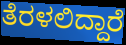
ತೆರಳಲಿದ್ದಾರೆ